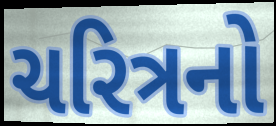
ચરિત્રનો